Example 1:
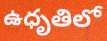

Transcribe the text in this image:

ఉధృతిలో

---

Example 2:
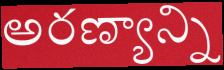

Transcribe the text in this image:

అరణ్యాన్ని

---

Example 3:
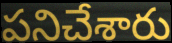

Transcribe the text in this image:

పనిచేశారు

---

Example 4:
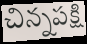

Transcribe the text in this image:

చిన్నపక్షి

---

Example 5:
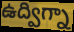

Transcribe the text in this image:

ఉద్విగ్నా